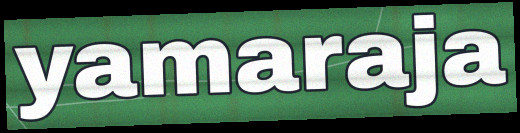
yamaraja